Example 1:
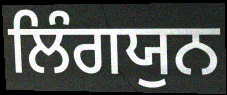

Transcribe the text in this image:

ਲਿੰਗਯੁਨ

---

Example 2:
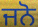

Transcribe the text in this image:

ਜਨੋ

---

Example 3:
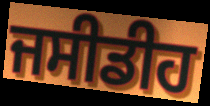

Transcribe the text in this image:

ਜਸੀਡੀਹ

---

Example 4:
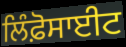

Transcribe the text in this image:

ਲਿੰਫ਼ੋਸਾਈਟ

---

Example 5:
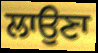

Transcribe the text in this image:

ਲਾਉਣਾ